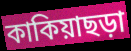
কাকিয়াছড়া